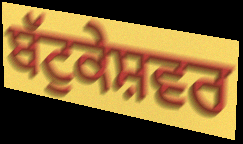
ਬੱਟੁਕੇਸ਼ਵਰ